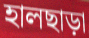
হালছাড়া